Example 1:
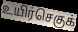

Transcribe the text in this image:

உயிர்செகுக்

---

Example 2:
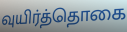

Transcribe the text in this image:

வுயிர்த்தொகை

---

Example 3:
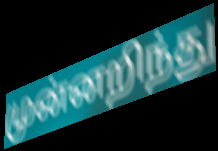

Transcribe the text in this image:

முன்னறிந்து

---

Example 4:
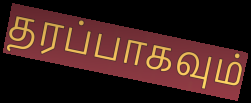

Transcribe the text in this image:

தரப்பாகவும்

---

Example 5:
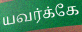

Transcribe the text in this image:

யவர்க்கே